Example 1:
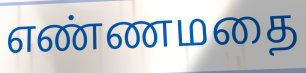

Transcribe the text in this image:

எண்ணமதை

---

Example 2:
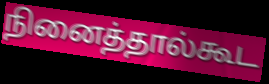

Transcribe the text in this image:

நினைத்தால்கூட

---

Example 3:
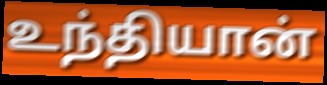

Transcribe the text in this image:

உந்தியான்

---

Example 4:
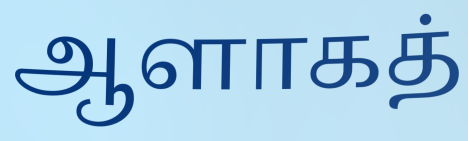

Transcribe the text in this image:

ஆளாகத்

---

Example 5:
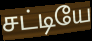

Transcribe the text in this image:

சட்டியே